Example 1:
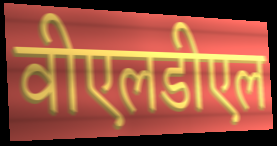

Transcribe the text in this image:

वीएलडीएल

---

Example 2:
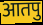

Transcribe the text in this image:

आतपु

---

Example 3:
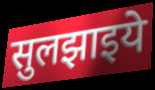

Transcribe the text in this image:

सुलझाइये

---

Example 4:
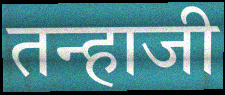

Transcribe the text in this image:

तन्हाजी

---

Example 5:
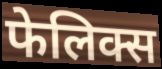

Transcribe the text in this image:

फेलिक्स